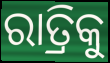
ରାତ୍ରିକୁ